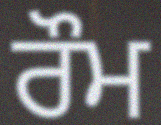
ਰੌਮ